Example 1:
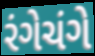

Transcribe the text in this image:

રંગેચંગે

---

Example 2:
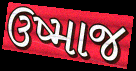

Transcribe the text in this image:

ઉષ્માજ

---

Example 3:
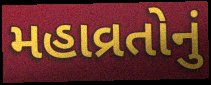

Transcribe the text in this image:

મહાવ્રતોનું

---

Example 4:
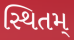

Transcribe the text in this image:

સ્થિતમ્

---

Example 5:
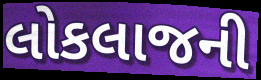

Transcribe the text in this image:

લોકલાજની